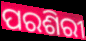
ପରଶିରୀ